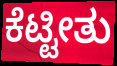
ಕೆಟ್ಟೀತು